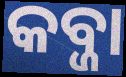
କବ୍ଜା